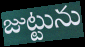
జుట్టును